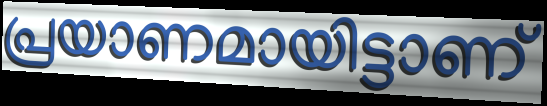
പ്രയാണമായിട്ടാണ്